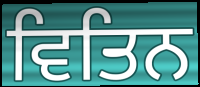
ਵਿਤਿਨ